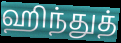
ஹிந்துத்